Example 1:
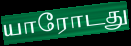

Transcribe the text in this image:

யாரோடது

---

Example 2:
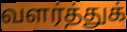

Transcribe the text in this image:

வளர்த்துக்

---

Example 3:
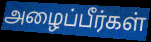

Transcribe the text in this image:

அழைப்பீர்கள்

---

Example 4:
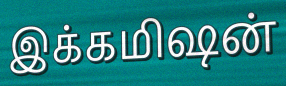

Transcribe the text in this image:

இக்கமிஷன்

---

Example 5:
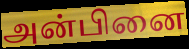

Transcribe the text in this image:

அன்பினை